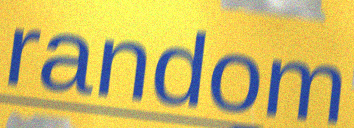
random